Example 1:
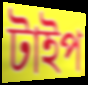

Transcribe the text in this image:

টাইপ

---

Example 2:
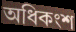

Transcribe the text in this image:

অধিকংশ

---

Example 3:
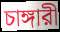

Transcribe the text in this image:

চাঙ্গারী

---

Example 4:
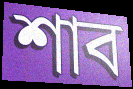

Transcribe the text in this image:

শাব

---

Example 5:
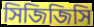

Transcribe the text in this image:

সিজিজিসি